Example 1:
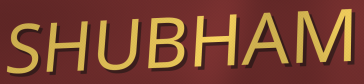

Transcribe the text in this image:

SHUBHAM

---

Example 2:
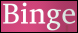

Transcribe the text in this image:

Binge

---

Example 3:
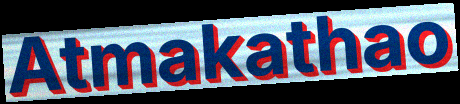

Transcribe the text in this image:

Atmakathao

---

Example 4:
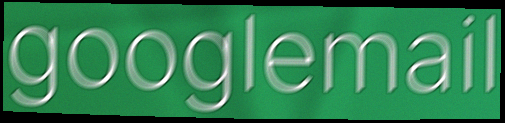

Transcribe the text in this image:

googlemail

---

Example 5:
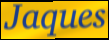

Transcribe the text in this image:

Jaques